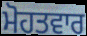
ਮੋਹਤਵਾਰ